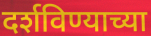
दर्शविण्याच्या